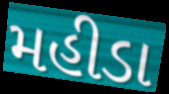
મહીડા